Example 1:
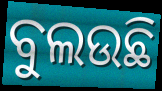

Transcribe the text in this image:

ବୁଲଉଛି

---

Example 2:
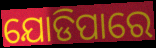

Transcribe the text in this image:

ଯୋଡିପାରେ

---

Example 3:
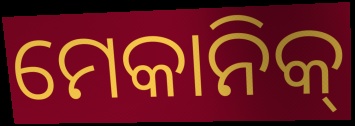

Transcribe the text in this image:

ମେକାନିକ୍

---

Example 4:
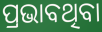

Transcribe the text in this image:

ପ୍ରଭାବଥିବା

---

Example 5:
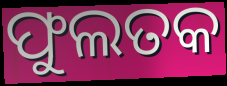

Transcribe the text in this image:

ଫୁଲତକ